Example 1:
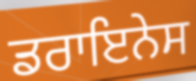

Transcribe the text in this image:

ਡਰਾਇਨੇਸ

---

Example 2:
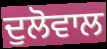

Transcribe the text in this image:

ਦੁਲੋਵਾਲ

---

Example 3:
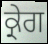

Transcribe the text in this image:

ਕ੍ਰੇਗ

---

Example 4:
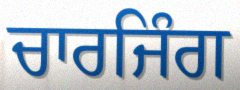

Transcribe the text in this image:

ਚਾਰਜਿੰਗ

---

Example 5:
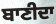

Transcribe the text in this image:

ਬਾਣੀਦਾ